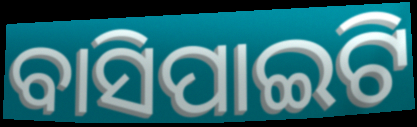
ବାସିପାଇଟି